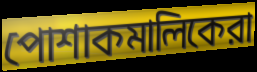
পোশাকমালিকেরা